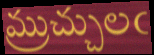
మ్రుచ్చులఁ